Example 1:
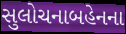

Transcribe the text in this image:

સુલોચનાબહેનના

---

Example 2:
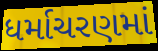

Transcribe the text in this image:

ધર્માચરણમાં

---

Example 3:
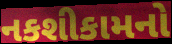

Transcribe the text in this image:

નકશીકામનો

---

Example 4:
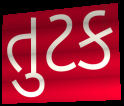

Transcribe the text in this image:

તુટક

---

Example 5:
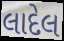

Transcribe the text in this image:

લાદેલ